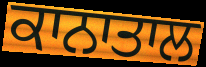
ਕਾਨਾਤਾਲ